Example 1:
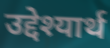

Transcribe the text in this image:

उद्देश्यार्थ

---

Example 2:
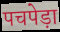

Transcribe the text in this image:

पचपेड़ा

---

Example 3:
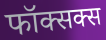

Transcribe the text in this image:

फॉक्सक्स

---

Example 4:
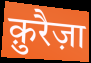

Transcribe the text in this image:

क़ुरैज़ा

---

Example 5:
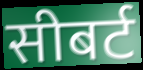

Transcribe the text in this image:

सीबर्ट